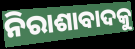
ନିରାଶାବାଦକୁ